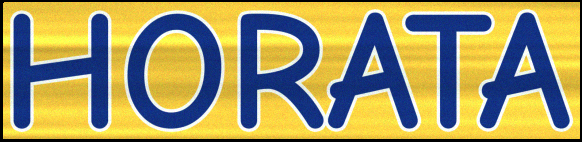
HORATA